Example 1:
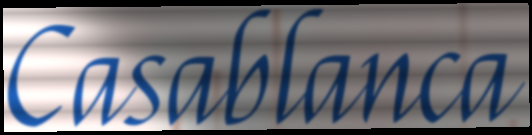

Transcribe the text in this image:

Casablanca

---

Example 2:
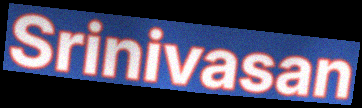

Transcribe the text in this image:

Srinivasan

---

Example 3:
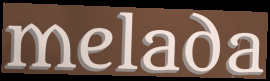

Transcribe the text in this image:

melada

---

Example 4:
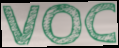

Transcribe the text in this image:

VOC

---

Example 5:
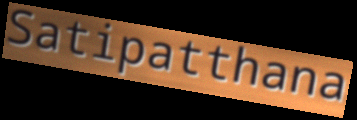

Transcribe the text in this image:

Satipatthana